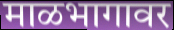
माळभागावर